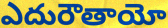
ఎదురౌతాయో